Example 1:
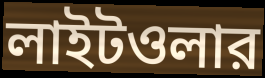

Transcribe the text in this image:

লাইটওলার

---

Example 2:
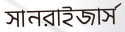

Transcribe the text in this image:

সানরাইজার্স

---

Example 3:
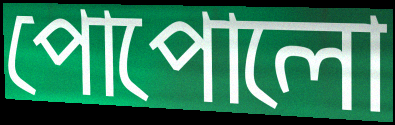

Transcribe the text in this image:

পোপোলো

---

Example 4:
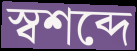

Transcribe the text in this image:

স্বশব্দে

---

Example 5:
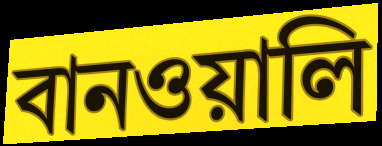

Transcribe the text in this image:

বানওয়ালি